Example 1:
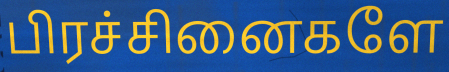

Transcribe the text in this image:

பிரச்சினைகளே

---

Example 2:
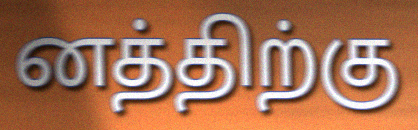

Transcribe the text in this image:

னத்திற்கு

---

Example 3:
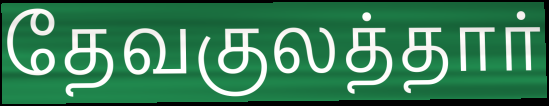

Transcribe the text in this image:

தேவகுலத்தார்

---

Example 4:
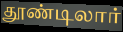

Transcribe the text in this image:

தூண்டிலார்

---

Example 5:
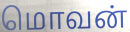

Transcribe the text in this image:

மொவன்